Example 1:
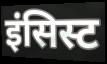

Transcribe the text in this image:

इंसिस्ट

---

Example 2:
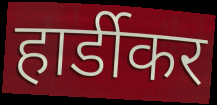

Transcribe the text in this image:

हार्डीकर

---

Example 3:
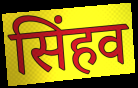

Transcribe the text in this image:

सिंहव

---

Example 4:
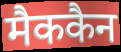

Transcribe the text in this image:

मैककैन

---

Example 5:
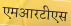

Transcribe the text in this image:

एमआरटीएस